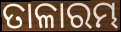
ତାଳାରମ୍ଭ